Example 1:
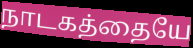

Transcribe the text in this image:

நாடகத்தையே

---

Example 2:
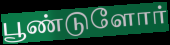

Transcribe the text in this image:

பூண்டுளோர்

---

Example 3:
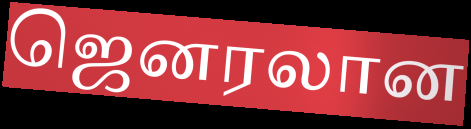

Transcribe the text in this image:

ஜெனரலான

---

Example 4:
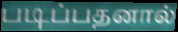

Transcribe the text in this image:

படிப்பதனால்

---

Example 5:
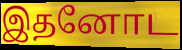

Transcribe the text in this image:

இதனோட